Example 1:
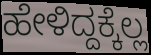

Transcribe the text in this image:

ಹೇಳಿದ್ದಕ್ಕೆಲ್ಲ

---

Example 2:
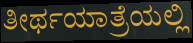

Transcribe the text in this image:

ತೀರ್ಥಯಾತ್ರೆಯಲ್ಲಿ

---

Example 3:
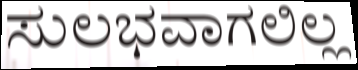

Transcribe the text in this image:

ಸುಲಭವಾಗಲಿಲ್ಲ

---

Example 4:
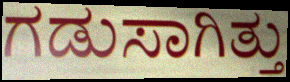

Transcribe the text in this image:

ಗಡುಸಾಗಿತ್ತು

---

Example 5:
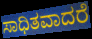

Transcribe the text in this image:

ಸಾಧಿತವಾದರೆ